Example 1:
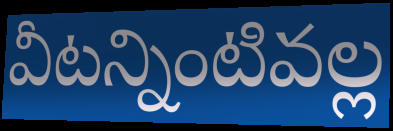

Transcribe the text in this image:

వీటన్నింటివల్ల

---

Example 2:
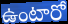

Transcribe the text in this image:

ఉంటారో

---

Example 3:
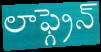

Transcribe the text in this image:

లాఫ్గ్రెన్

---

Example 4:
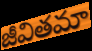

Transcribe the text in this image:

జీవితమా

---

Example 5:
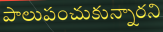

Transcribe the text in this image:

పాలుపంచుకున్నారని